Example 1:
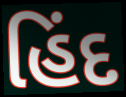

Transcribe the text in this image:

હિંદ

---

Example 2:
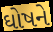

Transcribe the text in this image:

ઘોષને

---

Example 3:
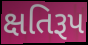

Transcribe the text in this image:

ક્ષતિરૂપ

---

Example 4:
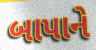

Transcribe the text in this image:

બાપાને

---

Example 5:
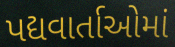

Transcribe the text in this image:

પદ્યવાર્તાઓમાં